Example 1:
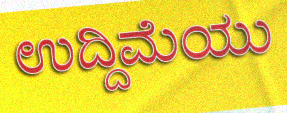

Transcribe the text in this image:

ಉದ್ದಿಮೆಯು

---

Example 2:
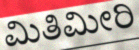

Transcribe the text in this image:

ಮಿತಿಮೀರಿ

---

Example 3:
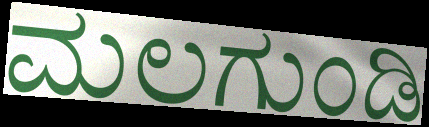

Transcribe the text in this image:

ಮಲಗುಂಡಿ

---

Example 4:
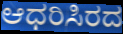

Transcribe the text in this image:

ಆಧರಿಸಿರದ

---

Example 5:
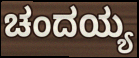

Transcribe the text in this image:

ಚಂದಯ್ಯ